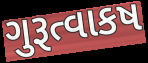
ગુરૂત્વાકષ